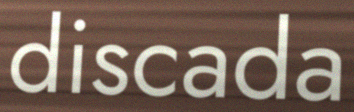
discada